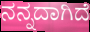
ನನ್ನದಾಗಿದೆ